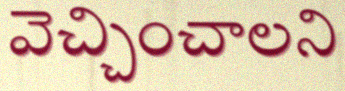
వెచ్చించాలని